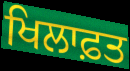
ਖਿਲਾਫ਼ਤ